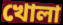
খোলা